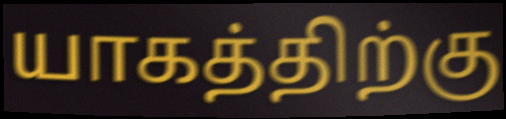
யாகத்திற்கு